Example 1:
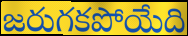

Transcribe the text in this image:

జరుగకపోయేది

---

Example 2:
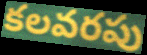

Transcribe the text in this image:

కలవరపు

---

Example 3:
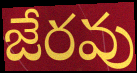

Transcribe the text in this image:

జేరవు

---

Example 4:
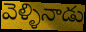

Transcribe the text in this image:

వెళ్ళినాడు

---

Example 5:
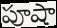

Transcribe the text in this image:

పూషా